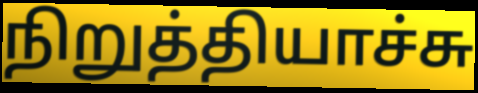
நிறுத்தியாச்சு